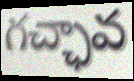
గచ్ఛావ